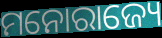
ମନୋରାଜ୍ୟେ